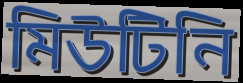
মিউটিনি